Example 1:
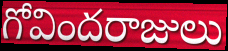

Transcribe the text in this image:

గోవిందరాజులు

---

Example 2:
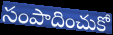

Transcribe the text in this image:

సంపాదించుకో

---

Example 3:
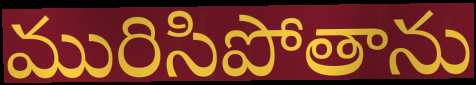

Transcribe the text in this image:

మురిసిపోతాను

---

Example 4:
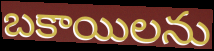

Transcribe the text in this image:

బకాయిలను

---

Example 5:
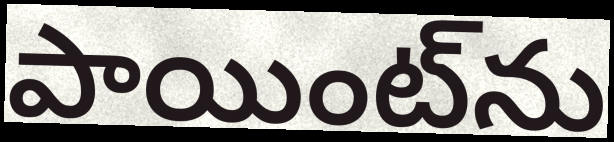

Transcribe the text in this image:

పాయింట్‌ను